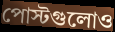
পোস্টগুলোও